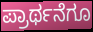
ಪ್ರಾರ್ಥನೆಗೂ